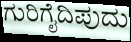
ಗುರಿಗೈದಿಪುದು